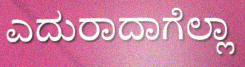
ಎದುರಾದಾಗೆಲ್ಲಾ